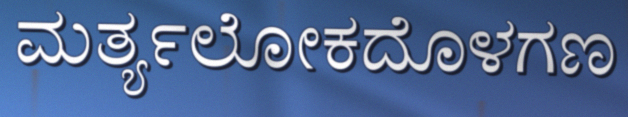
ಮರ್ತ್ಯಲೋಕದೊಳಗಣ